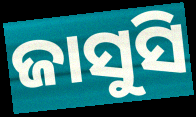
ଜାସୁସି